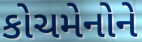
કોચમેનોને